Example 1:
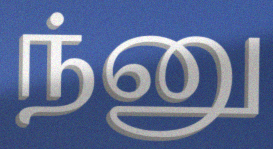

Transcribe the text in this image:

ந்னு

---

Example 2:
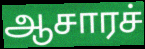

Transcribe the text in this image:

ஆசாரச்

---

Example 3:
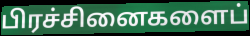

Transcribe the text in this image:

பிரச்சினைகளைப்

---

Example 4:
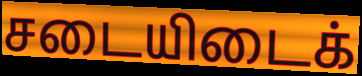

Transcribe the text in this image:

சடையிடைக்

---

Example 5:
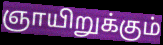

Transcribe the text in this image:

ஞாயிறுக்கும்